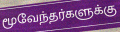
மூவேந்தர்களுக்கு